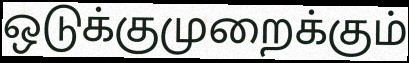
ஒடுக்குமுறைக்கும்